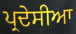
ਪ੍ਰਦੇਸੀਆ